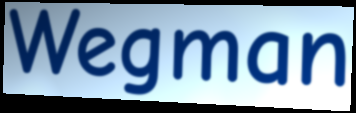
Wegman